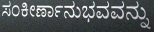
ಸಂಕೀರ್ಣಾನುಭವವನ್ನು